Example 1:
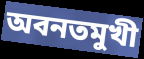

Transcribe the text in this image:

অবনতমুখী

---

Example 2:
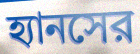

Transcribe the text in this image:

হ্যানসের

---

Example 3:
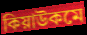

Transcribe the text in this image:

কিয়াউকমে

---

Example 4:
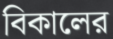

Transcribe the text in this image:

বিকালের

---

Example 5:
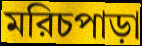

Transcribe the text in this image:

মরিচপাড়া